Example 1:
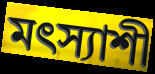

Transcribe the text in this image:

মৎস্যাশী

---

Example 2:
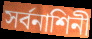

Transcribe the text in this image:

সর্বনাশিনী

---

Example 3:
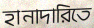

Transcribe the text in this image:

হানাদারিতে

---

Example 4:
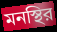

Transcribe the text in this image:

মনস্থির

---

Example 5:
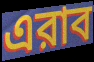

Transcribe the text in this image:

এরাব